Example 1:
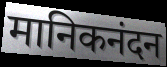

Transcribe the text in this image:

मानिकनंदन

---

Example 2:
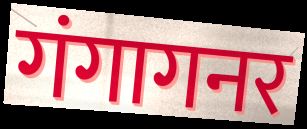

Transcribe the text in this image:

गंगागनर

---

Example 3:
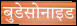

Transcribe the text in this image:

बुडेसोनाइड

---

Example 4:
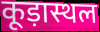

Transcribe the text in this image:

कूड़ास्थल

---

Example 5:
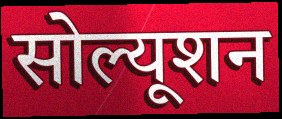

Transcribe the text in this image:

सोल्यूशन